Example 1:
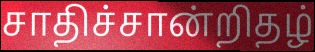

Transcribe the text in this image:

சாதிச்சான்றிதழ்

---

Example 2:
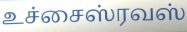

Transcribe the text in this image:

உச்சைஸ்ரவஸ்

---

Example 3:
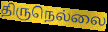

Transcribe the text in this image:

திருநெல்லை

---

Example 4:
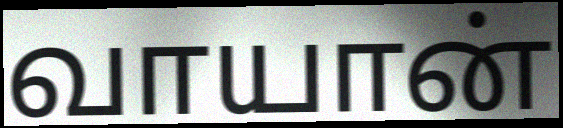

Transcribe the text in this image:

வாயான்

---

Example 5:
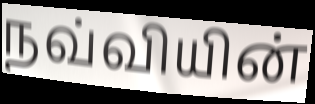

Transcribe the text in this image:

நவ்வியின்